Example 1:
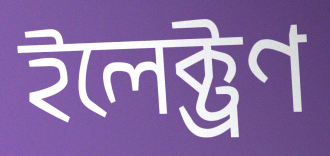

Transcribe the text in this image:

ইলেক্ট্ৰণ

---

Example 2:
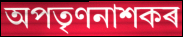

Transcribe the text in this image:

অপতৃণনাশকৰ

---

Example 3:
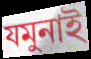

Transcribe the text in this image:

যমুনাই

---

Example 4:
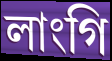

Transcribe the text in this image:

লাংগি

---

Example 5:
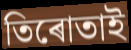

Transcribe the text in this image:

তিৰোতাই